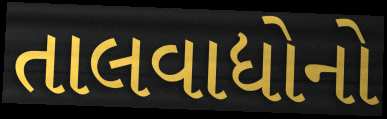
તાલવાદ્યોનો